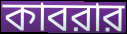
কাবরার